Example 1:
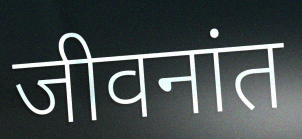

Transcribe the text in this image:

जीवनांत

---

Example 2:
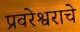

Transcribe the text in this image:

प्रवरेश्वराचे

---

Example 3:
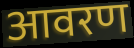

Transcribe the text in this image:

आवरण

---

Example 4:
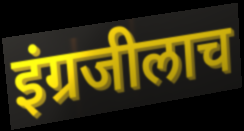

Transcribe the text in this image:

इंग्रजीलाच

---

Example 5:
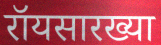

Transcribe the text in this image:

रॉयसारख्या